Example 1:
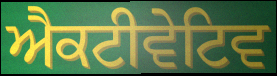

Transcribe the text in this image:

ਐਕਟੀਵੇਟਿਵ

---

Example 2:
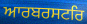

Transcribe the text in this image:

ਆਰਬਰਸਟਰਿ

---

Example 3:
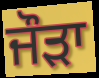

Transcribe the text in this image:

ਜੌੜਾ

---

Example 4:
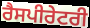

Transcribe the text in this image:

ਰੈਸਪੀਰੇਟਰੀ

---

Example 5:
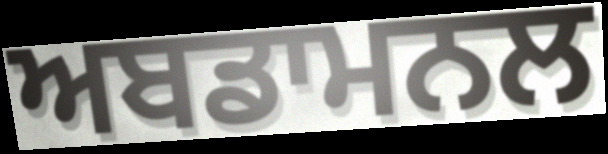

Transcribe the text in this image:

ਅਬਡਾਮਨਲ